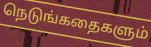
நெடுங்கதைகளும்